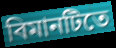
বিমানটিতে